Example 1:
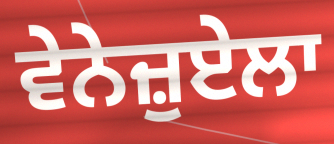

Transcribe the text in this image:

ਵੇਨੇਜ਼ੁਏਲਾ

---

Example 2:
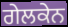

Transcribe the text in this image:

ਗੇਲਕੇਨ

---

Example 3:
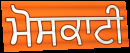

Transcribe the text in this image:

ਮੋਸਕਾਟੀ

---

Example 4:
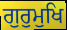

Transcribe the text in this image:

ਗੁਰੁਮੁਖਿ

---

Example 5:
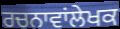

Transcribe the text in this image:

ਰਚਨਾਵਾਂਲੇਖਕ